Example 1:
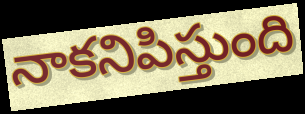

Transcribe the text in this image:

నాకనిపిస్తుంది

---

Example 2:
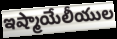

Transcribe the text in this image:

ఇష్మాయేలీయుల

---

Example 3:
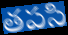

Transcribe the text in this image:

తపసి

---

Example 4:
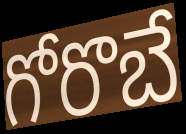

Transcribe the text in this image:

గోరొబే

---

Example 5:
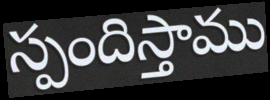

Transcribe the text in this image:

స్పందిస్తాము